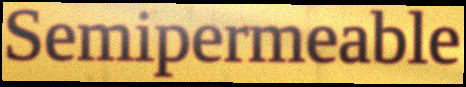
Semipermeable